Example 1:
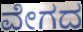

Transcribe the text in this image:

ವೇಗದ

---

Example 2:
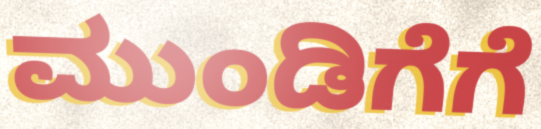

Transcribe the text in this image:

ಮುಂಡಿಗೆಗೆ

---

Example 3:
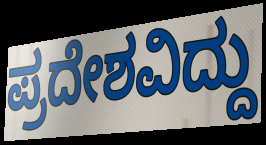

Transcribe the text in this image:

ಪ್ರದೇಶವಿದ್ದು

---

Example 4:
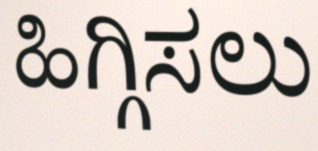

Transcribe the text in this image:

ಹಿಗ್ಗಿಸಲು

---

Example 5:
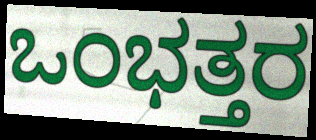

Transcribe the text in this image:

ಒಂಭತ್ತರ